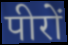
पीरों